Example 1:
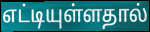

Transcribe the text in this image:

எட்டியுள்ளதால்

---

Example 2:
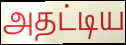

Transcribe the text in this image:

அதட்டிய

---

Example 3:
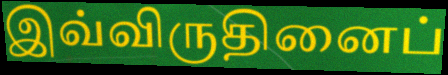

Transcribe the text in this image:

இவ்விருதினைப்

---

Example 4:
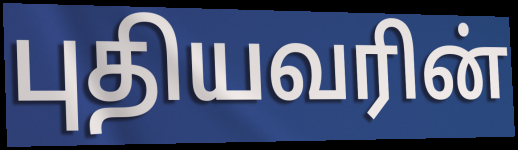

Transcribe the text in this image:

புதியவரின்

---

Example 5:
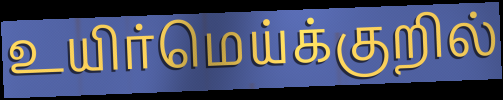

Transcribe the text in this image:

உயிர்மெய்க்குறில்